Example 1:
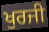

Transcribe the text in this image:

ਖੁਰਜੀ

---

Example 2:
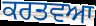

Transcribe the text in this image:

ਕਰਤਵਆ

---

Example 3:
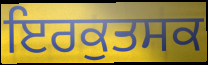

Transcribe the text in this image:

ਇਰਕੁਤਸਕ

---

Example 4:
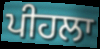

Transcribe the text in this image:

ਪੀਹਲਾ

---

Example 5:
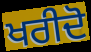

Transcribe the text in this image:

ਖਰੀਦੋ